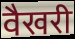
वैखरी